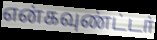
என்கவுண்ட்டர்